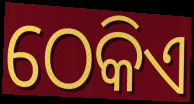
ଠେକିଏ